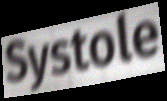
Systole